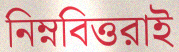
নিম্নবিত্তরাই